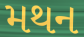
મથન